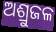
ଅଶ୍ରୁଜଳ